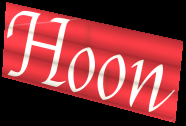
Hoon